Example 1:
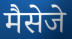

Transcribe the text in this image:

मैसेजे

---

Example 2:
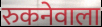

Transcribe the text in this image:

रुकनेवाला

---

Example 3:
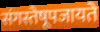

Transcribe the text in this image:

संगस्तेषूपजायते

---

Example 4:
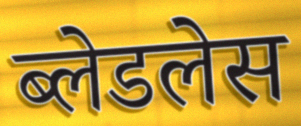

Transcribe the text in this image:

ब्लेडलेस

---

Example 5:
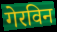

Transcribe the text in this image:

गेरविन